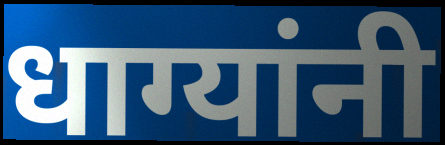
धाग्यांनी